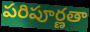
పరిపూర్ణతా